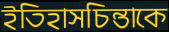
ইতিহাসচিন্তাকে